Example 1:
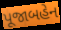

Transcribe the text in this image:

પૂજાબહેન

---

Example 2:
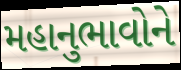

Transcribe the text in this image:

મહાનુભાવોને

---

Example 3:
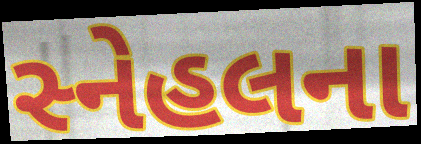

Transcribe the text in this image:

સ્નેહલના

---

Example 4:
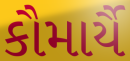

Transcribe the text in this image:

કૌમાર્યૈ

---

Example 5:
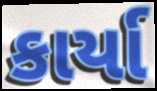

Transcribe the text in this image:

કાર્યા